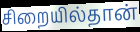
சிறையில்தான்